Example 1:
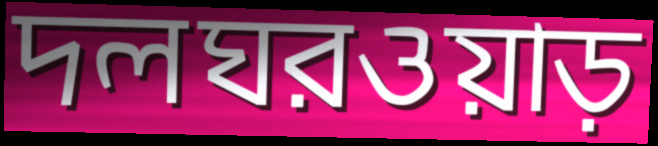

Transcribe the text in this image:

দলঘরওয়াড়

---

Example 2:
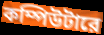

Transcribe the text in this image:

কম্পিউটারে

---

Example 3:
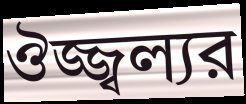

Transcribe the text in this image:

ঔজ্জ্বল্যর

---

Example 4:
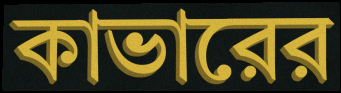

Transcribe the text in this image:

কাভারের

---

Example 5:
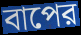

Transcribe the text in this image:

বাপের